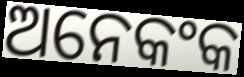
ଅନେକଂକ